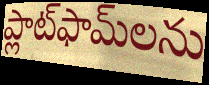
ప్లాట్‌ఫామ్‌లను